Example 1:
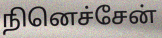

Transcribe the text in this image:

நினெச்சேன்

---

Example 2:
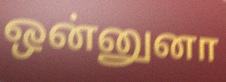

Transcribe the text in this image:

ஒன்னுனா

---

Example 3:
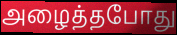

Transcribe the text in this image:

அழைத்தபோது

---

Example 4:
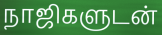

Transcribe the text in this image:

நாஜிகளுடன்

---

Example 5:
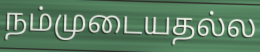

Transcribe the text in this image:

நம்முடையதல்ல